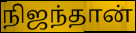
நிஜந்தான்